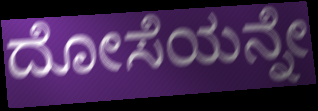
ದೋಸೆಯನ್ನೇ